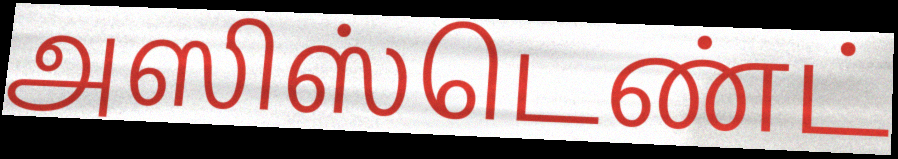
அஸிஸ்டெண்ட்